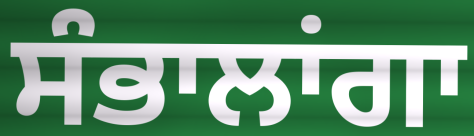
ਸੰਭਾਲਾਂਗਾ